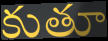
కుతూ